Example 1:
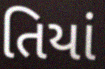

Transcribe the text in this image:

તિયાં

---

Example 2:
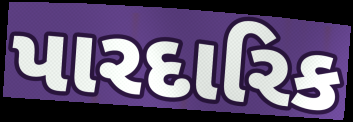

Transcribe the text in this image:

પારદારિક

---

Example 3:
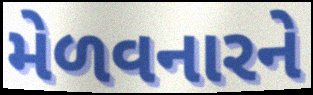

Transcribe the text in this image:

મેળવનારને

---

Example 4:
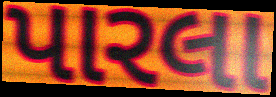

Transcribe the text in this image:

પારલા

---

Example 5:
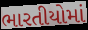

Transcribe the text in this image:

ભારતીયોમાં